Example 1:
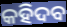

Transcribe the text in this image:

କହିଦବ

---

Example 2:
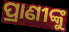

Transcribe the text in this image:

ପ୍ରାଣୀଙ୍କୁ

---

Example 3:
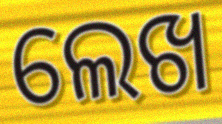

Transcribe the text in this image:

ଲେଖ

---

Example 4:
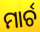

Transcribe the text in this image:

ମାର୍ଚ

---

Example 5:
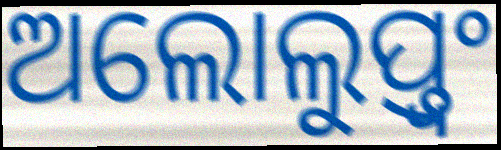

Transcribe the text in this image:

ଅଲୋଲୁପ୍ତ୍ୱଂ